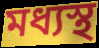
মধ্যস্থ